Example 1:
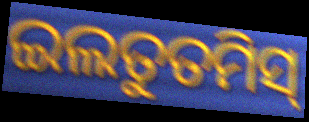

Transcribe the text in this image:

ଇଲତୁତମିସ୍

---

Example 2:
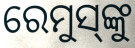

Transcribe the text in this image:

ରେମୁସ୍‌ଙ୍କୁ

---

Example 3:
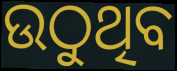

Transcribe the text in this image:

ଉଠୁଥିବ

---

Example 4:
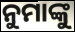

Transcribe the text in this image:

ନୁମାଙ୍କୁ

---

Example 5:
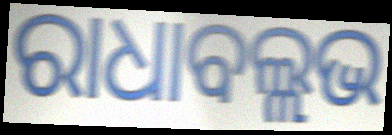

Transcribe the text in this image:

ରାଧାବଲ୍ଲଭ